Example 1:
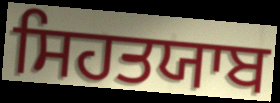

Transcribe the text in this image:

ਸਿਹਤਯਾਬ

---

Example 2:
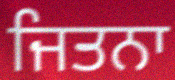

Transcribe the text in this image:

ਜਿਤਨਾ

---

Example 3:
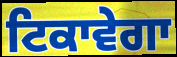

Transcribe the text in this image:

ਟਿਕਾਵੇਗਾ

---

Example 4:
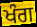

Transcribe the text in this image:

ਖੰਗ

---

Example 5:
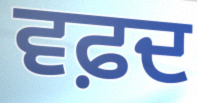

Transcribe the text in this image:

ਵਫ਼ਦ